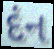
દંન